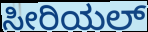
ಸೀರಿಯಲ್